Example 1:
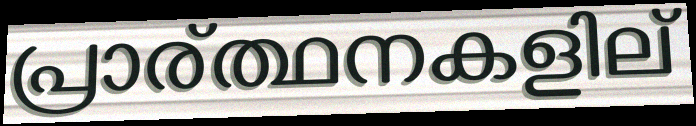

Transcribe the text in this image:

പ്രാര്ത്ഥനകളില്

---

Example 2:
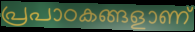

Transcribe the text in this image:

പ്രപാഠകങ്ങളാണ്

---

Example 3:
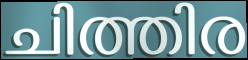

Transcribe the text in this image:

ചിത്തിര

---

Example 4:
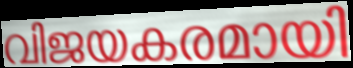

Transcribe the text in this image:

വിജയകരമായി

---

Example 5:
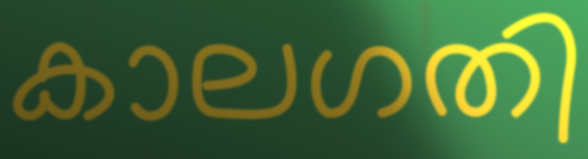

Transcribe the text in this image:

കാലഗതി